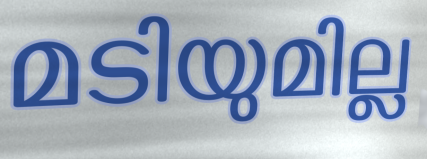
മടിയുമില്ല